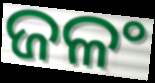
ଜଳଂ